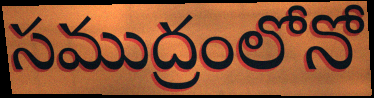
సముద్రంలోనో